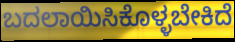
ಬದಲಾಯಿಸಿಕೊಳ್ಳಬೇಕಿದೆ